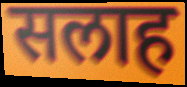
सलाह